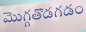
మొగ్గతొడగడం